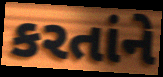
કરતાંને